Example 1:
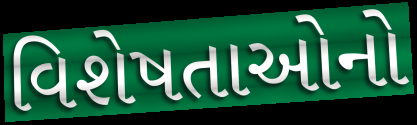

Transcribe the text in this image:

વિશેષતાઓનો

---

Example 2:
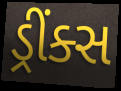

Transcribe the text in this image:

ડ્રીંક્સ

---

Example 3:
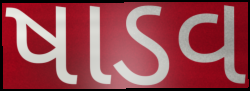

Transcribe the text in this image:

ષાડવ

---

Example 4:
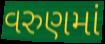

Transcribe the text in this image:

વરુણમાં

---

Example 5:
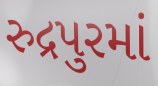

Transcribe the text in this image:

રુદ્રપુરમાં